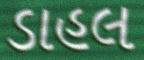
ડાહલ